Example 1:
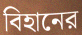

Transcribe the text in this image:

বিহানের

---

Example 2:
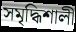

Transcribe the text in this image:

সমৃদ্ধিশালী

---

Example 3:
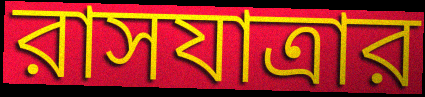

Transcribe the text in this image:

রাসযাত্রার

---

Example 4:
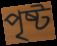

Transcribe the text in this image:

পৃষ্ট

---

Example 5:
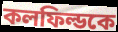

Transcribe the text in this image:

কলফিল্ডকে